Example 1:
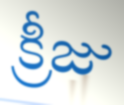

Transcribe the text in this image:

క్రీజు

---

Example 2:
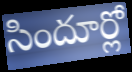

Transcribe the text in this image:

సిందూర్లో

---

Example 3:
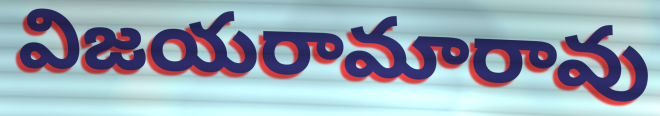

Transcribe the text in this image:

విజయరామారావు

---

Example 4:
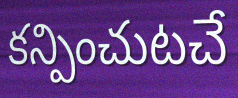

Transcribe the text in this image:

కన్పించుటచే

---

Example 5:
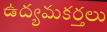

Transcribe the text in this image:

ఉద్యమకర్తలు